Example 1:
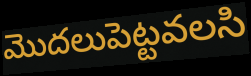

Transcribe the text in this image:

మొదలుపెట్టవలసి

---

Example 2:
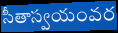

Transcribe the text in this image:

సీతాస్వయంవర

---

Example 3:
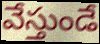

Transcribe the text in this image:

వేస్తుండే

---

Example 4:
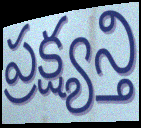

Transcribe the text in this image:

ప్రక్ష్యన్తి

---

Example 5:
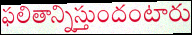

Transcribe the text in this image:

ఫలితాన్నిస్తుందంటారు